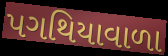
પગથિયાવાળા